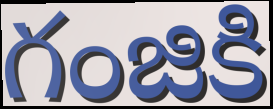
గంజికి